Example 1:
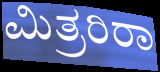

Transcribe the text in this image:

ಮಿತ್ರರಿರಾ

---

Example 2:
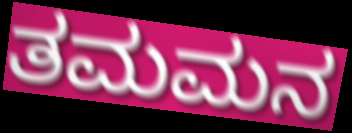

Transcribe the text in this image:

ತಮಮನ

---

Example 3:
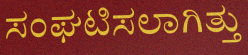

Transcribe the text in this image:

ಸಂಘಟಿಸಲಾಗಿತ್ತು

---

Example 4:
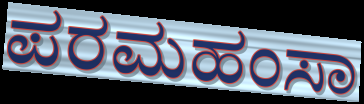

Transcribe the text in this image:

ಪರಮಹಂಸಾ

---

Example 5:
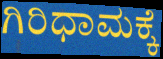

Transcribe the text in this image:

ಗಿರಿಧಾಮಕ್ಕೆ